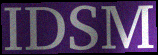
IDSM